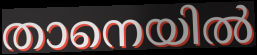
താനെയിൽ